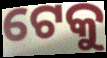
ଟେକୁ